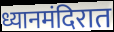
ध्यानमंदिरात